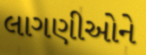
લાગણીઓને